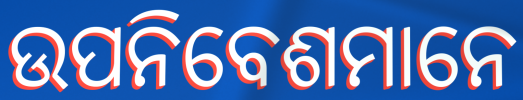
ଉପନିବେଶମାନେ